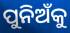
ପୁନିଅଁକୁ